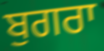
ਬੁਗਰਾ